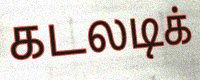
கடலடிக்